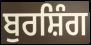
ਬੁਰਸ਼ਿੰਗ